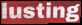
lusting